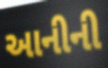
આનીની